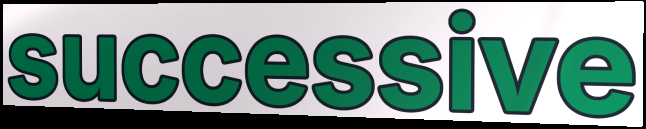
successive